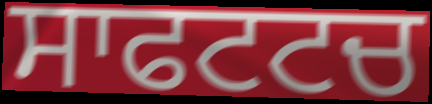
ਸਾਫਟਟਚ